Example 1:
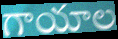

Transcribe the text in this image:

గాయాల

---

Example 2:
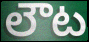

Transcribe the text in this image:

లౌట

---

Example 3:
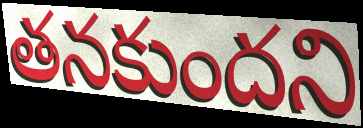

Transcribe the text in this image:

తనకుందని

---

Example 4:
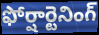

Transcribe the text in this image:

ఫోర్షార్టెనింగ్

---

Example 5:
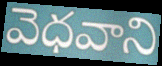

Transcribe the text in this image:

వెధవాని